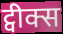
ट्वीक्स